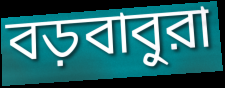
বড়বাবুরা